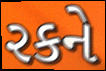
રકને